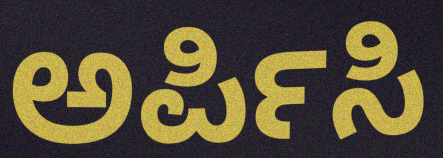
ಅರ್ಪಿಸಿ